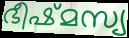
ഭീഷ്മസ്യ